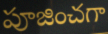
పూజించగా